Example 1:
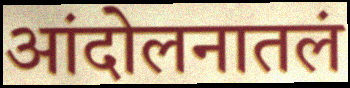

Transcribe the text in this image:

आंदोलनातलं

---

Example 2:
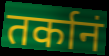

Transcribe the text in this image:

तर्कानं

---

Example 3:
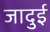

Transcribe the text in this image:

जादुई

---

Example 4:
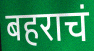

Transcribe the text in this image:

बहराचं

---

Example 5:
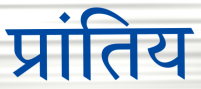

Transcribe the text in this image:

प्रांतिय